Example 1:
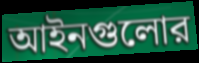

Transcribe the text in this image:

আইনগুলোর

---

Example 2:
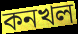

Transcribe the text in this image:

কনখল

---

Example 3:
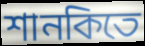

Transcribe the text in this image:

শানকিতে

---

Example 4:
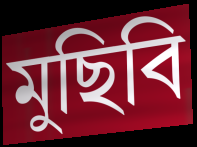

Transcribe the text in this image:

মুছিবি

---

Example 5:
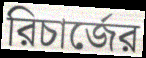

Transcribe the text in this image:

রিচার্জের